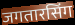
जगतारसिंग